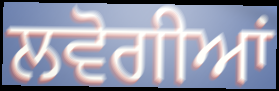
ਲਵੋਗੀਆਂ